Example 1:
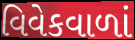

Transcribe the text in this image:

વિવેકવાળાં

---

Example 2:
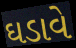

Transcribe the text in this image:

ઘડાવે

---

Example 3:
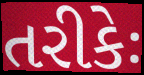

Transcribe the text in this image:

તરીકેઃ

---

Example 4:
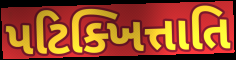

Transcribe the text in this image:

પટિક્ખિત્તાતિ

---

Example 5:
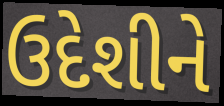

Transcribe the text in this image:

ઉદેશીને